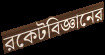
রকেটবিজ্ঞানের